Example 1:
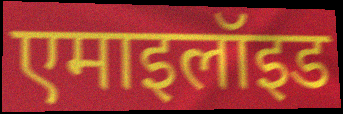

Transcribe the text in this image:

एमाइलॉइड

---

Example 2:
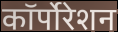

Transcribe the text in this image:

कॉर्पोरेशन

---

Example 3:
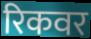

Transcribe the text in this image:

रिकवर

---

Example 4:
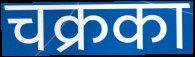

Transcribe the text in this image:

चक्रका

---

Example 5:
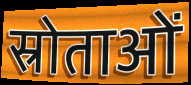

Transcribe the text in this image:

स्रोताओं